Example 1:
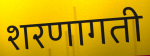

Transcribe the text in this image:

शरणागती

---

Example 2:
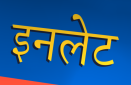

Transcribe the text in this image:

इनलेट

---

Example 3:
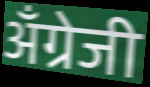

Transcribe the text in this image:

अँग्रेजी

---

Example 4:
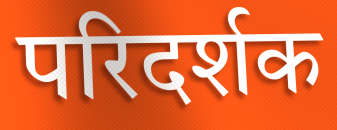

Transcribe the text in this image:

परिदर्शक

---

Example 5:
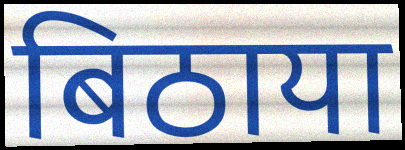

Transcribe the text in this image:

बिठाया